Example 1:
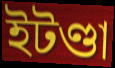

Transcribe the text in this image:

ইটণ্ডা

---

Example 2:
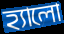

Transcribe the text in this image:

হ্যালো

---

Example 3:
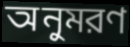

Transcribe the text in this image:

অনুমরণ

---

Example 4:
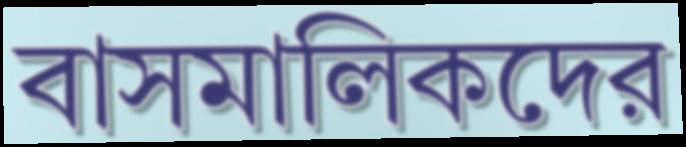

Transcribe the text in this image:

বাসমালিকদের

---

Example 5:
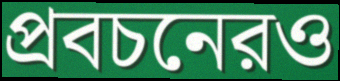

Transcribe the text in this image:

প্রবচনেরও